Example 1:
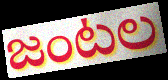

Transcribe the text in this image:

జంటల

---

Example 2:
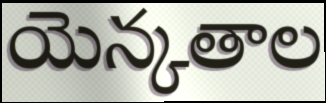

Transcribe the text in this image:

యెన్కతాల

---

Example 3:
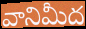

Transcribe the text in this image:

వానిమీద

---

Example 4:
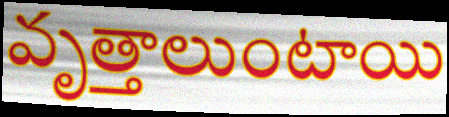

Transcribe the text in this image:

వృత్తాలుంటాయి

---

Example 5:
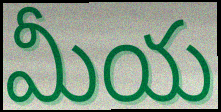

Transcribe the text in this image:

మీయ